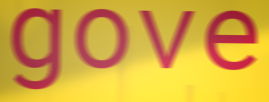
gove